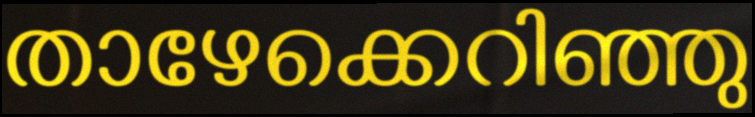
താഴേക്കെറിഞ്ഞു